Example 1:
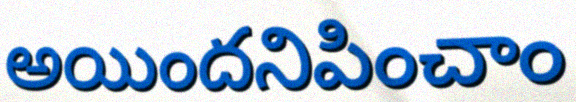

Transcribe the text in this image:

అయిందనిపించాం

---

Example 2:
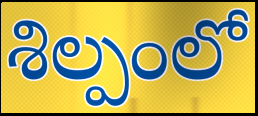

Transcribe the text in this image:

శిల్పంలో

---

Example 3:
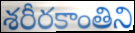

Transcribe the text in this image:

శరీరకాంతిని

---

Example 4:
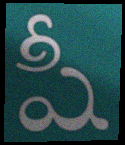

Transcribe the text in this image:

షీ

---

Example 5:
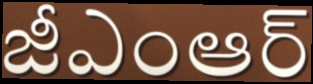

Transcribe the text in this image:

జీఎంఆర్